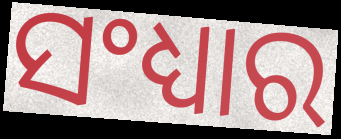
ସଂଧ୍ୟାର